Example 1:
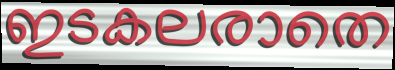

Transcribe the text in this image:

ഇടകലരാതെ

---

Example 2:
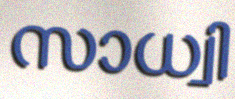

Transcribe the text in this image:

സാധ്വി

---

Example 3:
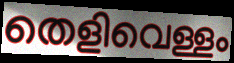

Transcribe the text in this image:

തെളിവെള്ളം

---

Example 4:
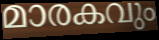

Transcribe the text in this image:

മാരകവും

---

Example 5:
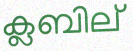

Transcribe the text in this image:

ക്ലബില്